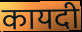
कायदी